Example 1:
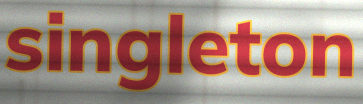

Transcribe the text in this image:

singleton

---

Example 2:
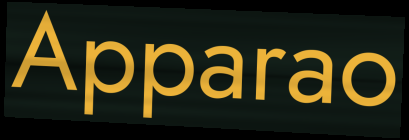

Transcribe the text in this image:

Apparao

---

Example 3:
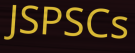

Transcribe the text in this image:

JSPSCs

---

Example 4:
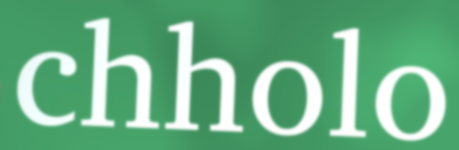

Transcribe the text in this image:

chholo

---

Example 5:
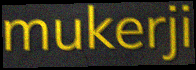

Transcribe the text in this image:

mukerji